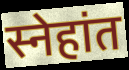
स्नेहांत